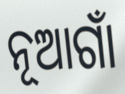
ନୂଆଗାଁ